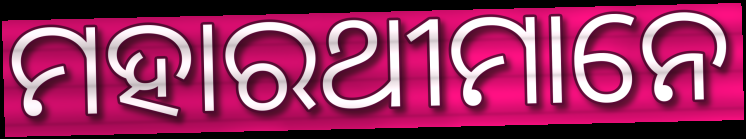
ମହାରଥୀମାନେ